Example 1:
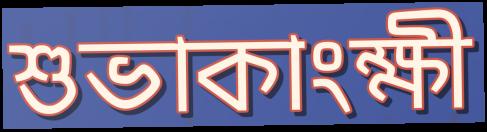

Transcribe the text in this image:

শুভাকাংক্ষী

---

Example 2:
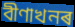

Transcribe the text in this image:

বীণাখনৰ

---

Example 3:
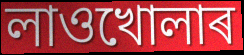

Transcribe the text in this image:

লাওখোলাৰ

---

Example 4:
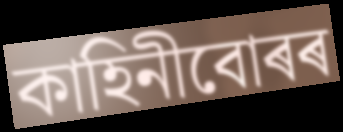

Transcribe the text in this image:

কাহিনীবোৰৰ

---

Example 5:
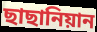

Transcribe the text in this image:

ছাছানিয়ান